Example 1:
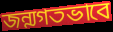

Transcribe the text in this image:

জন্মগতভাবে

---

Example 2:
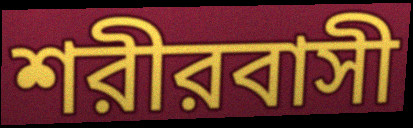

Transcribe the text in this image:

শরীরবাসী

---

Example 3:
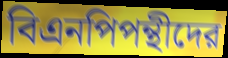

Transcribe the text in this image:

বিএনপিপন্থীদের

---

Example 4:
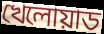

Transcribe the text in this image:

খেলোয়াড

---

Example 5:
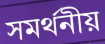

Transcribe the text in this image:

সমর্থনীয়